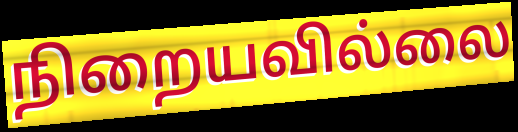
நிறையவில்லை